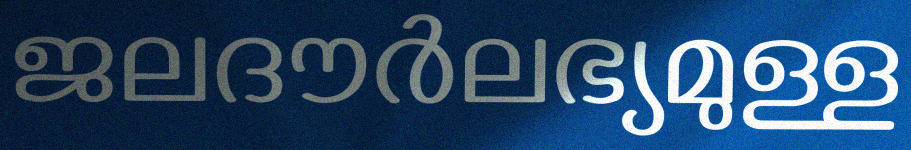
ജലദൗർലഭ്യമുള്ള